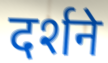
दर्शने